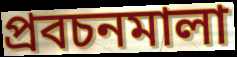
প্রবচনমালা